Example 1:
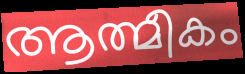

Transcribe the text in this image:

ആത്മീകം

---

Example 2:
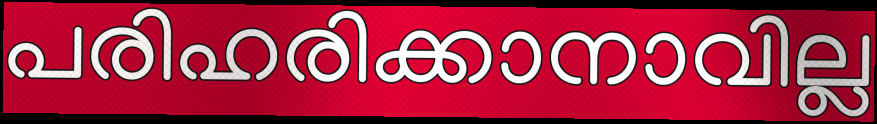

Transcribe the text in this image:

പരിഹരിക്കാനാവില്ല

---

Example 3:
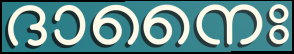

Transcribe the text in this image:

ദാനൈഃ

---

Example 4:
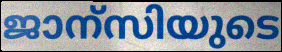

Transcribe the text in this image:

ജാന്സിയുടെ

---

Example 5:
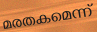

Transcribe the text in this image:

മരതകമെന്ന്